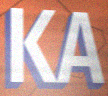
KA